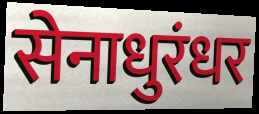
सेनाधुरंधर